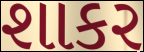
શાકર